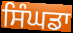
ਸਿੰਘਡਾ